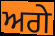
ਅਗੇ